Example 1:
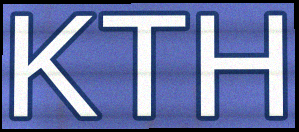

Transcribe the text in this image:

KTH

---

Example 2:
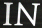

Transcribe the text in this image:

IN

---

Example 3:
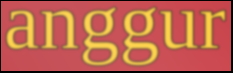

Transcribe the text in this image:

anggur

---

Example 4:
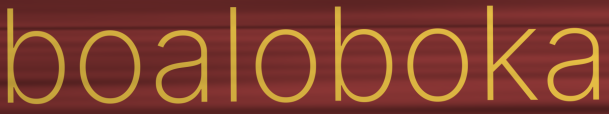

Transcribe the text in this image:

boaloboka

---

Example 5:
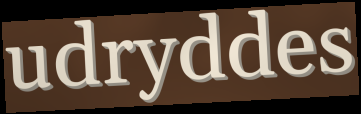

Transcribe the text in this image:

udryddes